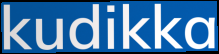
kudikka